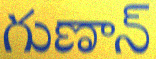
గుణాన్